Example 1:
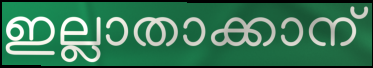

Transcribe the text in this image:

ഇല്ലാതാക്കാന്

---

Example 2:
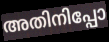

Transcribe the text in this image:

അതിനിപ്പോ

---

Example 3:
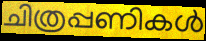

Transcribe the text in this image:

ചിത്രപ്പണികൾ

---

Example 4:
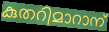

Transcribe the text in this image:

കുതറിമാറാന്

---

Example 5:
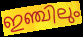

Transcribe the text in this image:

ഇഞ്ചിലും